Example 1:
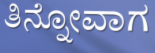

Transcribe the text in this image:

ತಿನ್ನೋವಾಗ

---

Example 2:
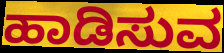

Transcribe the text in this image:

ಹಾಡಿಸುವ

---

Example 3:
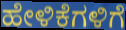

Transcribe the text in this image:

ಹೇಳಿಕೆಗಳಿಗೆ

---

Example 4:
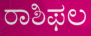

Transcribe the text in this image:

ರಾಶಿಫಲ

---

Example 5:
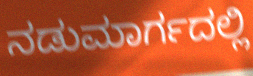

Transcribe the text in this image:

ನಡುಮಾರ್ಗದಲ್ಲಿ